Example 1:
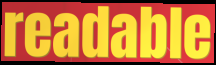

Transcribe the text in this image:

readable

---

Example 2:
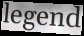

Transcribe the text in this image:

legend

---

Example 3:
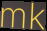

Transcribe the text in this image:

mk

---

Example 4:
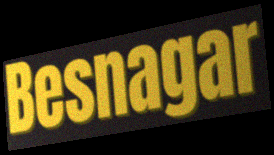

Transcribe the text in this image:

Besnagar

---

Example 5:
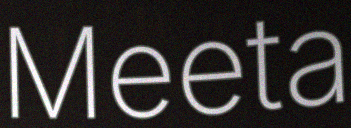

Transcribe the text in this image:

Meeta